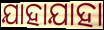
ଯାହାଯାହା